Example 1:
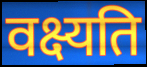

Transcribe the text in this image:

वक्ष्यति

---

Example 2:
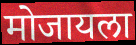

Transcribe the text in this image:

मोजायला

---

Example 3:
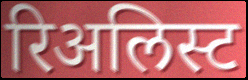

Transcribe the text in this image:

रिअलिस्ट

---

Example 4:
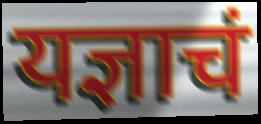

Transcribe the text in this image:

यज्ञाचं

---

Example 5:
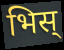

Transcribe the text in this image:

भिस्